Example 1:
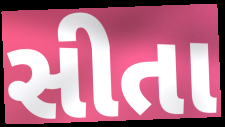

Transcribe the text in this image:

સીતા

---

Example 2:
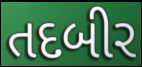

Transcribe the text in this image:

તદબીર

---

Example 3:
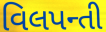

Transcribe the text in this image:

વિલપન્તી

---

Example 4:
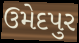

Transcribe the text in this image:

ઉમેદપુર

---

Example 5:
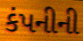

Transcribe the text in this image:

કંપનીની